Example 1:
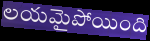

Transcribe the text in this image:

లయమైపోయింది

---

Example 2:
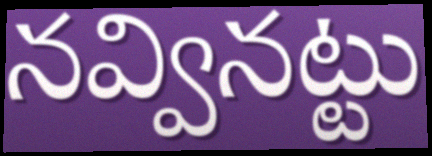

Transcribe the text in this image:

నవ్వినట్టు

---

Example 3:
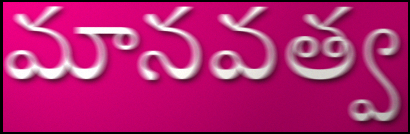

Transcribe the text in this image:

మానవత్వ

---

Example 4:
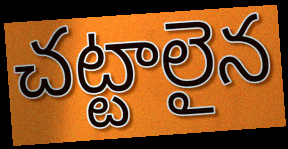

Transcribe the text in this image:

చట్టాలైన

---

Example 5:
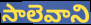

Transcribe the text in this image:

సాలెవాని